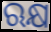
ଋକ୍ଷ